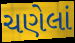
ચણેલાં